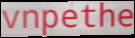
vnpethe